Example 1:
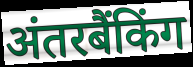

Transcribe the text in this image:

अंतरबैंकिंग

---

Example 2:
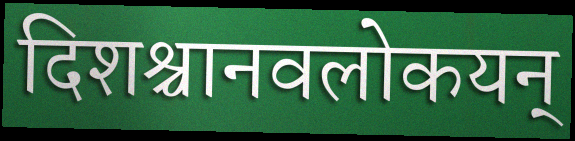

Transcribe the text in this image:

दिशश्चानवलोकयन्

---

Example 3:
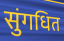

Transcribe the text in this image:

सुंगधित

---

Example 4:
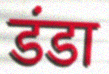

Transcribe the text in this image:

डंडा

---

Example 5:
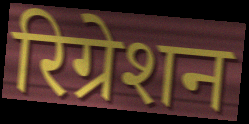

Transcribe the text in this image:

रिग्रेशन